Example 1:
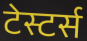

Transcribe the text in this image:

टेस्टर्स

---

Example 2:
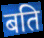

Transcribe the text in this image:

बति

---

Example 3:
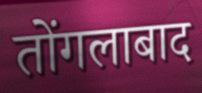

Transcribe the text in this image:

तोंगलाबाद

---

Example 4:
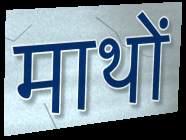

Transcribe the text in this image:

माथों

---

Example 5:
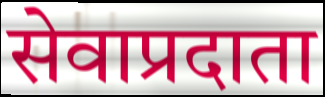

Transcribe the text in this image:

सेवाप्रदाता